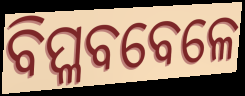
ବିପ୍ଳବବେଳେ